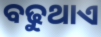
ବଢୁଥାଏ